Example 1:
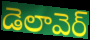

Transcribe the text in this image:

డెలావెర్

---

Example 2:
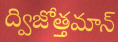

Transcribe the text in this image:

ద్విజోత్తమాన్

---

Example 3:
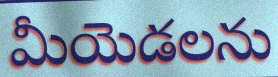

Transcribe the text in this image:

మీయెడలను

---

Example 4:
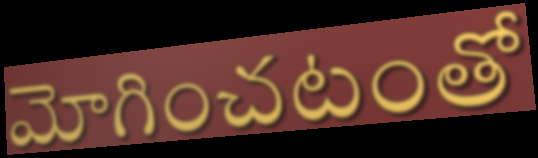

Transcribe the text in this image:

మోగించటంతో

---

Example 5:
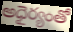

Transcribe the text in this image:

అధైర్యంతో